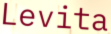
Levita